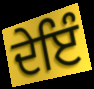
ਦੇਇੰ